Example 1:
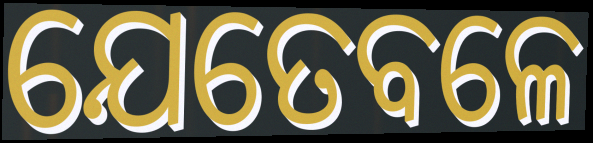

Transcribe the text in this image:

ଯେତେବଳେ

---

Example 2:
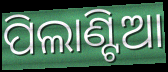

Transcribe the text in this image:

ପିଲାଣ୍ଟିଆ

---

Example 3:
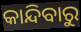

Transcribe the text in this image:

କାନ୍ଦିବାରୁ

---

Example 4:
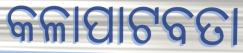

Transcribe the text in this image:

କଳାପାଟବତା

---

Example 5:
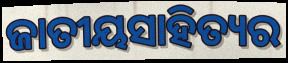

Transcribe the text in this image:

ଜାତୀୟସାହିତ୍ୟର